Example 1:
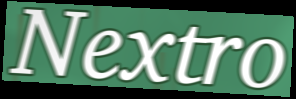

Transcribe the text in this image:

Nextro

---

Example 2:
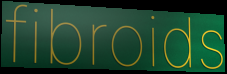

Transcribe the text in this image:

fibroids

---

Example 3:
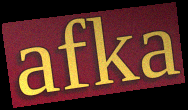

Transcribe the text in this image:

afka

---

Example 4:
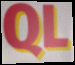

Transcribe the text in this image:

QL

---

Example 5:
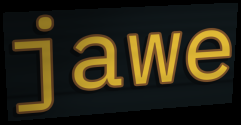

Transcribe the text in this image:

jawe